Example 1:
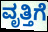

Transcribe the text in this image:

ವೃತ್ತಿಗೆ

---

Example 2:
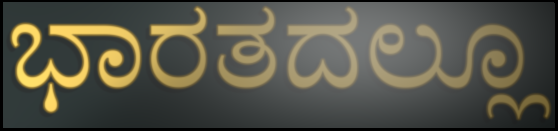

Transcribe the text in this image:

ಭಾರತದಲ್ಲೂ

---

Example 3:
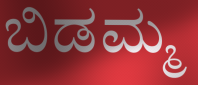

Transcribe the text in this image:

ಬಿಡಮ್ಮ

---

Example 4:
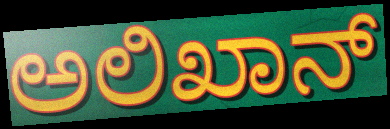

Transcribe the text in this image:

ಅಲಿಖಾನ್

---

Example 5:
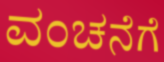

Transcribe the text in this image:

ವಂಚನೆಗೆ